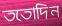
ততোদিন